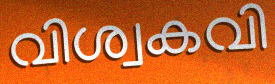
വിശ്വകവി